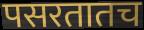
पसरतातच